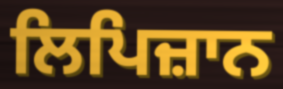
ਲਿਪਿਜ਼ਾਨ